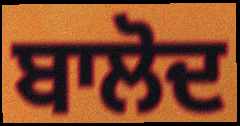
ਬਾਲੋਦ